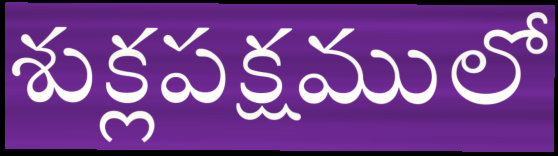
శుక్లపక్షములో